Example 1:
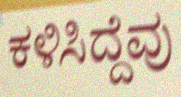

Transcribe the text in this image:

ಕಳಿಸಿದ್ದೆವು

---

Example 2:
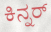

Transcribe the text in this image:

ಕಿನ್ನರ್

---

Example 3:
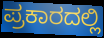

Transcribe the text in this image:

ಪ್ರಕಾರದಲ್ಲಿ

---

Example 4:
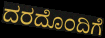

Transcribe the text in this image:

ದರದೊಂದಿಗೆ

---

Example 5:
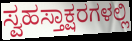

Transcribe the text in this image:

ಸ್ವಹಸ್ತಾಕ್ಷರಗಳಲ್ಲಿ